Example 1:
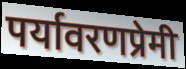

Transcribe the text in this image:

पर्यावरणप्रेमी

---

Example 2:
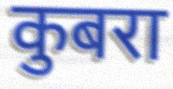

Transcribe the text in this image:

कुबरा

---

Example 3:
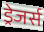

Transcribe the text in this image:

ड्रेजर्स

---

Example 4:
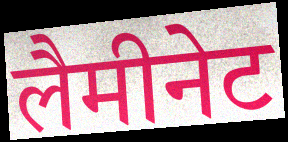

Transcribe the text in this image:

लैमीनेट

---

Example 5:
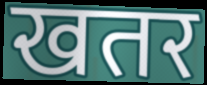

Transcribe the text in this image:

खतर